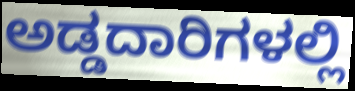
ಅಡ್ಡದಾರಿಗಳಲ್ಲಿ